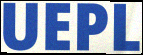
UEPL